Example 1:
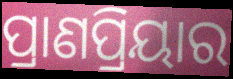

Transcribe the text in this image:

ପ୍ରାଣପ୍ରିୟାର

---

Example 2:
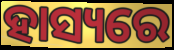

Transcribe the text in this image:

ହାସ୍ୟରେ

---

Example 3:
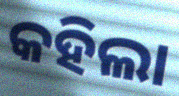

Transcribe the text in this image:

କହିଲା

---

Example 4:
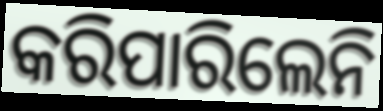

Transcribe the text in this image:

କରିପାରିଲେନି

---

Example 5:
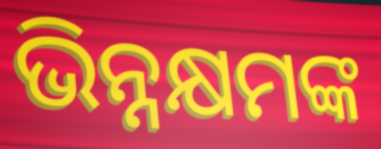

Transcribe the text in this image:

ଭିନ୍ନକ୍ଷମଙ୍କ